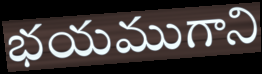
భయముగాని